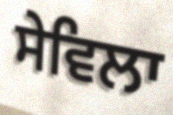
ਸੇਵਿਲਾ